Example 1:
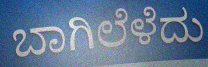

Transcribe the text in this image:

ಬಾಗಿಲೆಳೆದು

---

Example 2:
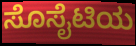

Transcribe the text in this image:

ಸೊಸೈಟಿಯ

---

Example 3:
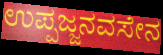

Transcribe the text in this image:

ಉಪ್ಪಜ್ಜನವಸೇನ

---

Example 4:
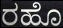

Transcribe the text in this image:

ರಹೊ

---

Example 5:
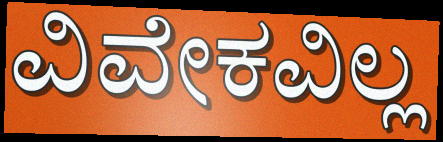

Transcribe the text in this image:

ವಿವೇಕವಿಲ್ಲ